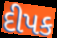
દીપક